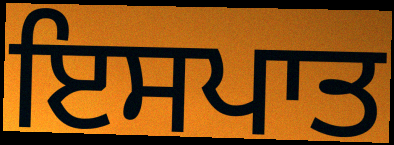
ਇਸਪਾਤ